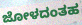
ಜೋಳದಂತಹ